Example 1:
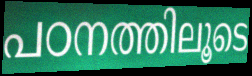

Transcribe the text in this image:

പഠനത്തിലൂടെ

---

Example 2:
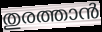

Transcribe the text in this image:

തുരത്താൻ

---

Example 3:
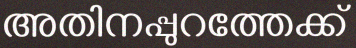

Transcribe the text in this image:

അതിനപ്പുറത്തേക്ക്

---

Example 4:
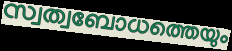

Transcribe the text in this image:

സ്വത്വബോധത്തെയും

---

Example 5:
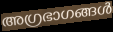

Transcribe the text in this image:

അഗ്രഭാഗങ്ങൾ